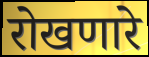
रोखणारे